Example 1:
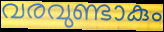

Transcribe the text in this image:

വരവുണ്ടാകും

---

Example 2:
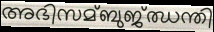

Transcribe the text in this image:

അഭിസമ്ബുജ്ഝന്തി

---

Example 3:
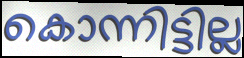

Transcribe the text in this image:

കൊന്നിട്ടില്ല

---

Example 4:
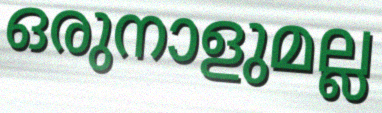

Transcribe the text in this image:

ഒരുനാളുമല്ല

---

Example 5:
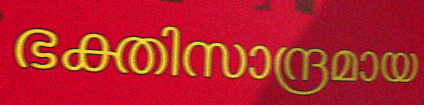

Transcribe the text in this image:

ഭക്തിസാന്ദ്രമായ